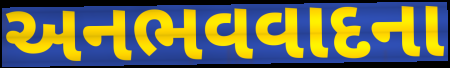
અનભવવાદના